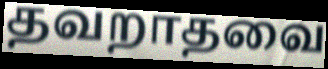
தவறாதவை